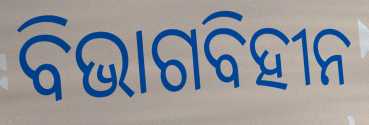
ବିଭାଗବିହୀନ